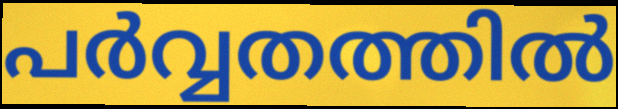
പർവ്വതത്തിൽ